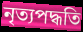
নৃত্যপদ্ধতি